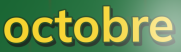
octobre